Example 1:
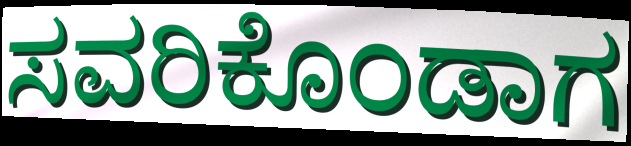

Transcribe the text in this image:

ಸವರಿಕೊಂಡಾಗ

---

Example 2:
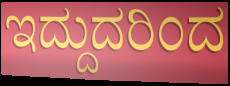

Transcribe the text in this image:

ಇದ್ದುದರಿಂದ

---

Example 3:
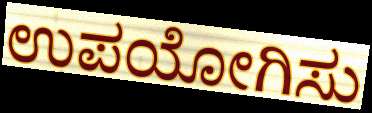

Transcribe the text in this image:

ಉಪಯೋಗಿಸು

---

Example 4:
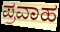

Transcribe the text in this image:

ಪ್ರವಾಹ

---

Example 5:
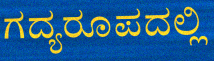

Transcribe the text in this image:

ಗದ್ಯರೂಪದಲ್ಲಿ